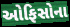
ઓફિસોના